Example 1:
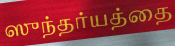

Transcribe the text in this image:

ஸுந்தர்யத்தை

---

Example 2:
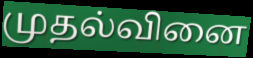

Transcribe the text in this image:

முதல்வினை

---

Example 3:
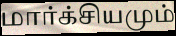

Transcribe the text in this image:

மார்க்சியமும்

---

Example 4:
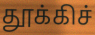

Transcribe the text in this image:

தூக்கிச்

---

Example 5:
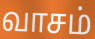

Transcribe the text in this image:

வாசம்